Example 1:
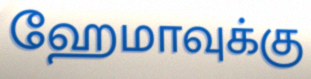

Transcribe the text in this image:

ஹேமாவுக்கு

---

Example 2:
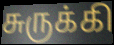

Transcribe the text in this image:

சுருக்கி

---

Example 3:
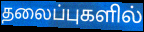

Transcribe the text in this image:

தலைப்புகளில்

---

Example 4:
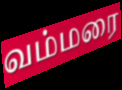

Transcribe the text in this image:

வம்மரை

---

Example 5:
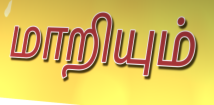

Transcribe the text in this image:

மாறியும்